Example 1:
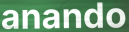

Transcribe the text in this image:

anando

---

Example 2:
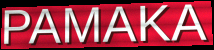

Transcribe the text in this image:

PAMAKA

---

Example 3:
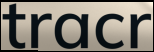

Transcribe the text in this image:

tracr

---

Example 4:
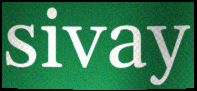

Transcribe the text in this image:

sivay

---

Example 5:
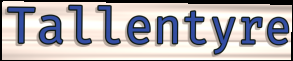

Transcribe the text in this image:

Tallentyre